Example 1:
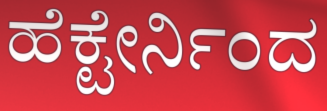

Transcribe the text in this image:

ಹೆಕ್ಟೇರ್ನಿಂದ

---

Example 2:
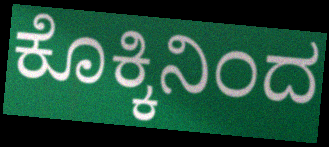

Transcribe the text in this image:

ಕೊಕ್ಕಿನಿಂದ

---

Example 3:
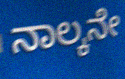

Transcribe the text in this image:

ನಾಲ್ಕನೇ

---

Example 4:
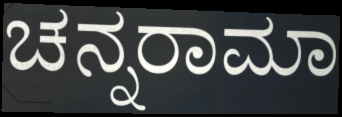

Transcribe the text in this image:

ಚನ್ನರಾಮಾ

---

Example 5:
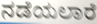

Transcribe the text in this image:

ನಡೆಯಲಾರೆ